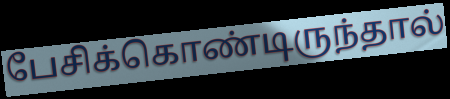
பேசிக்கொண்டிருந்தால்